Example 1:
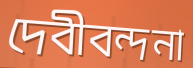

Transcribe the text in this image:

দেবীবন্দনা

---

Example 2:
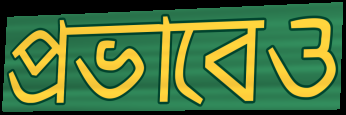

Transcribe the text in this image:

প্রভাবেও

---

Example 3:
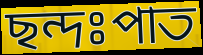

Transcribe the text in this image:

ছন্দঃপাত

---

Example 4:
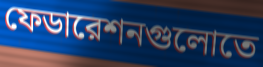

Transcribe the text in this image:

ফেডারেশনগুলোতে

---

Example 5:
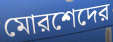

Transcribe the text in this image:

মোরশেদের